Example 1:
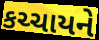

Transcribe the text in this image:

કચ્ચાયને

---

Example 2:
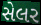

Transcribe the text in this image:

સેલર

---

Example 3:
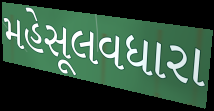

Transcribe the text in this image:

મહેસૂલવધારા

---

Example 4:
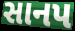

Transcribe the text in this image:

સાનપ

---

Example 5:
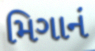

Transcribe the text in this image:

મિગાનં